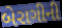
બેરાગીની